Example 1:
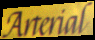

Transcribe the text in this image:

Arterial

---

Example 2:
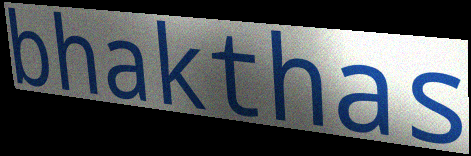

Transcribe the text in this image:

bhakthas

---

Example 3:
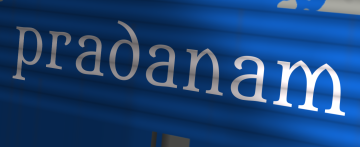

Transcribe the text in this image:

pradanam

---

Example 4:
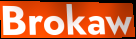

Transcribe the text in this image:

Brokaw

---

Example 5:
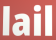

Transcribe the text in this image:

lail